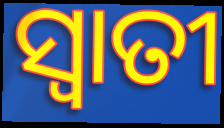
ସ୍ୱାତୀ